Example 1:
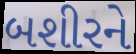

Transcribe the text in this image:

બશીરને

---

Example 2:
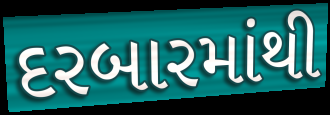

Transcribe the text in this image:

દરબારમાંથી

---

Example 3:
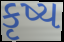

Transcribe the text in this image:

કૃષ્ય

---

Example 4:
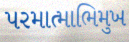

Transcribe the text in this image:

પરમાત્માભિમુખ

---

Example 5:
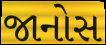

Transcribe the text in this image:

જાનોસ